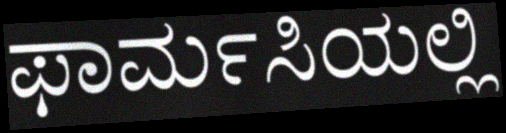
ಫಾರ್ಮಸಿಯಲ್ಲಿ